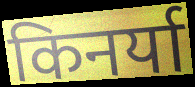
किनर्या